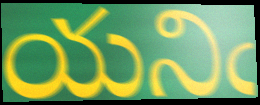
యనిఁ